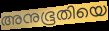
അനുഭൂതിയെ